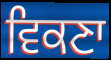
ਵਿਕਣਾ